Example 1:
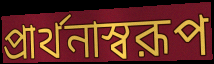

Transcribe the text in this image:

প্রার্থনাস্বরূপ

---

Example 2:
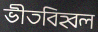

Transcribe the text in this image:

ভীতবিহ্বল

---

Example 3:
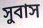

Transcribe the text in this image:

সুবাস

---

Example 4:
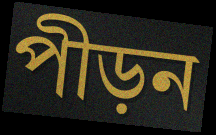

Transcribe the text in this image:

পীড়ন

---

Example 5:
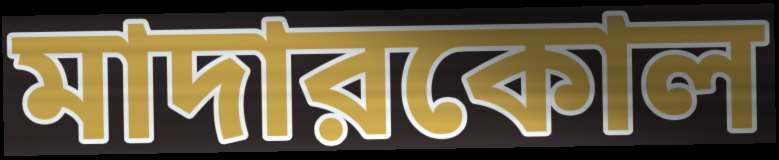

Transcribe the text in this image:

মাদারকোল